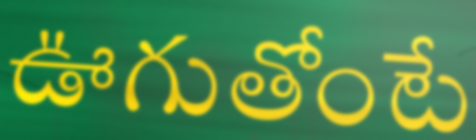
ఊగుతోంటే